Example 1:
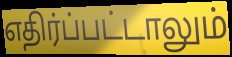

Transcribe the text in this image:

எதிர்ப்பட்டாலும்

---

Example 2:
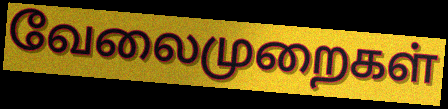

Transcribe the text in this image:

வேலைமுறைகள்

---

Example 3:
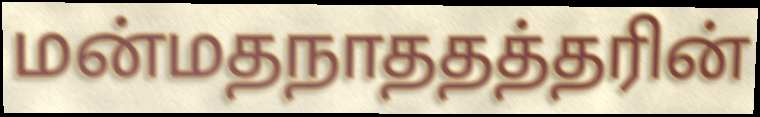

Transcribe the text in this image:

மன்மதநாததத்தரின்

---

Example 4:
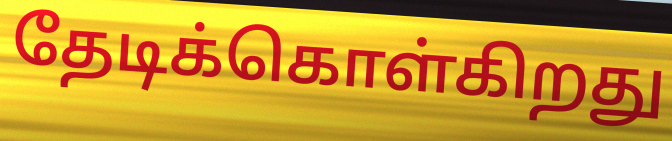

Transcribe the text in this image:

தேடிக்கொள்கிறது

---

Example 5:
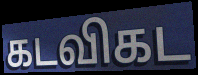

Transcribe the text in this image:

கடவிகட